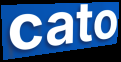
cato